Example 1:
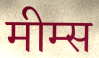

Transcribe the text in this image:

मीम्स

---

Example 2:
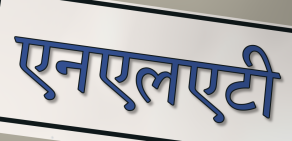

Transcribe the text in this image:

एनएलएटी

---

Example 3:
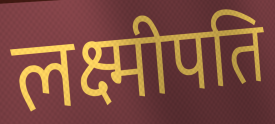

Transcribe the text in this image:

लक्ष्मीपति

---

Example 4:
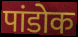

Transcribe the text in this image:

पांडोक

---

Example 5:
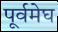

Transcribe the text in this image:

पूर्वमेघ